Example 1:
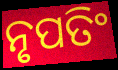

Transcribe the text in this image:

ନୃପତିଂ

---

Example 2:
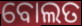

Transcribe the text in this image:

ବୋଲତ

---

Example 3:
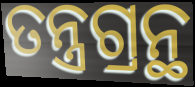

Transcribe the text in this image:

ତନ୍ତ୍ରଗ୍ରନ୍ଥ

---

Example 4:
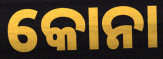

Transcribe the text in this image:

କୋନା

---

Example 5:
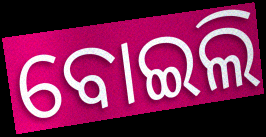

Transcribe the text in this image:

ବୋଇଲି